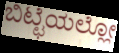
ಬಿಟ್ಟೆಯಲ್ಲೋ